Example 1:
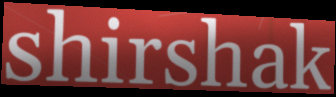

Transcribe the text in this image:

shirshak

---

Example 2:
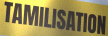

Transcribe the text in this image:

TAMILISATION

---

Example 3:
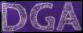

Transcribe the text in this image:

DGA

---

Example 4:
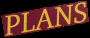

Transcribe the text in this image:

PLANS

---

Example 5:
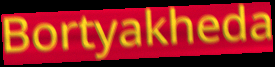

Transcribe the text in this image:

Bortyakheda